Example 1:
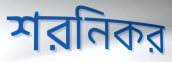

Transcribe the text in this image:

শরনিকর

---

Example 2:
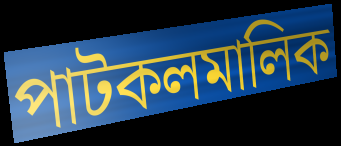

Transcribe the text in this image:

পাটকলমালিক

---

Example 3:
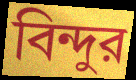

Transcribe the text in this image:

বিন্দুর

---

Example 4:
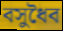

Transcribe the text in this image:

বসুধৈব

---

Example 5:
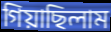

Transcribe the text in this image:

গিয়াছিলাম